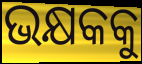
ଭକ୍ଷକକୁ